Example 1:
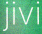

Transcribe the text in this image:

jivi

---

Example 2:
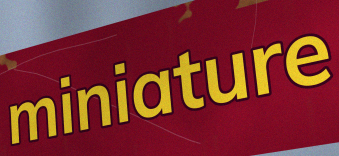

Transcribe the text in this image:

miniature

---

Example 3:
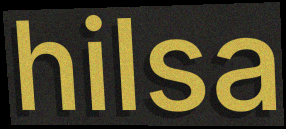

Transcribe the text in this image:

hilsa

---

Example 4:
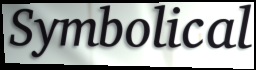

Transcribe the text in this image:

Symbolical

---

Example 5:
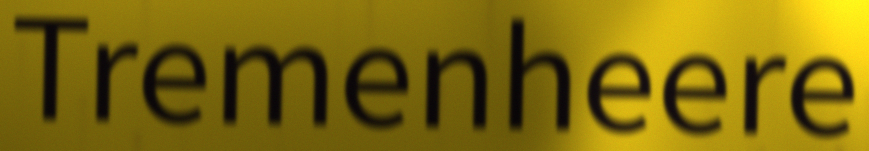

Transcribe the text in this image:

Tremenheere